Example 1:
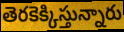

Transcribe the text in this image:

తెరకెక్కిస్తున్నారు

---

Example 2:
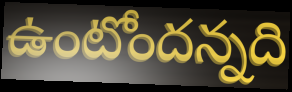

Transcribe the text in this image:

ఉంటోందన్నది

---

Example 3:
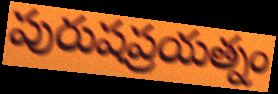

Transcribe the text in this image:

పురుషప్రయత్నం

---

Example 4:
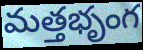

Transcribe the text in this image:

మత్తభృంగ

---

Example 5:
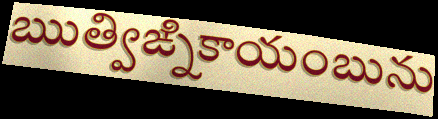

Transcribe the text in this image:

ఋత్విఙ్నికాయంబును